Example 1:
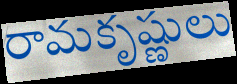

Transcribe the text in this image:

రామకృష్ణులు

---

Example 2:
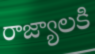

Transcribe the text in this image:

రాజ్యాలకి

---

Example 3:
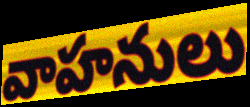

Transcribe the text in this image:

వాహనులు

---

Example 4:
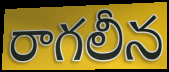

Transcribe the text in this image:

రాగలీన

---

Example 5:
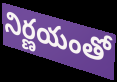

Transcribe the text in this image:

నిర్ణయంతో